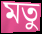
মতু